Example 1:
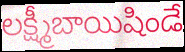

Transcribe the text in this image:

లక్ష్మీబాయిషిండే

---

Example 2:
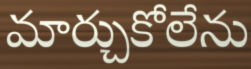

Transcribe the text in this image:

మార్చుకోలేను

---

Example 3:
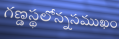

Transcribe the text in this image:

గణ్డస్థలోన్నసముఖం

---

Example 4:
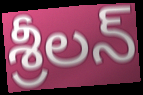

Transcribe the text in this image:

శ్రీలన్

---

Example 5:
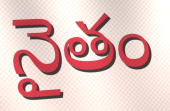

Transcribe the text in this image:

నైతం